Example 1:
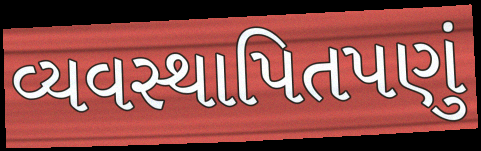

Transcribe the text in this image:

વ્યવસ્થાપિતપણું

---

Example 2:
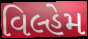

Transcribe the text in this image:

વિલ્હેમ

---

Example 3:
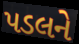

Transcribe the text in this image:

પડલને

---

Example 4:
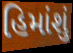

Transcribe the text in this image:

હિમાંશું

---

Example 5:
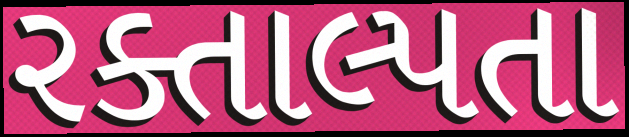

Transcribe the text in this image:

રક્તાલ્પતા